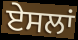
ਏਸਲਾਂ